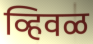
व्हिवळ